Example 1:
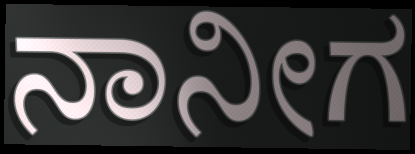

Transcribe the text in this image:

ನಾನೀಗ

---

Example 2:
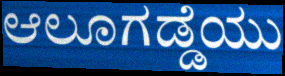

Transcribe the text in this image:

ಆಲೂಗಡ್ಡೆಯು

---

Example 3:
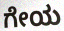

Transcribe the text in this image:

ಗೇಯ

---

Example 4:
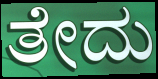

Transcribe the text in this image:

ತೇದು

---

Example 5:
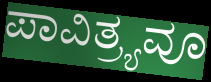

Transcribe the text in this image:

ಪಾವಿತ್ರ್ಯವೂ